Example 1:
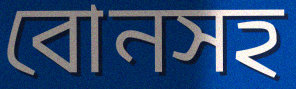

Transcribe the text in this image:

বোনসহ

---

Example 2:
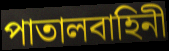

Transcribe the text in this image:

পাতালবাহিনী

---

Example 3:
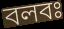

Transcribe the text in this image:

বলবঃ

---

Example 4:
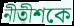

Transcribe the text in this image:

নীতীশকে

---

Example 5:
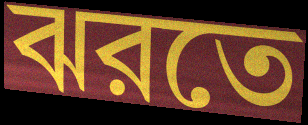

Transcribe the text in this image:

ঝরতে